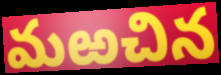
మఱచిన